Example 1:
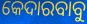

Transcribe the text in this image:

କେଦାରବାବୁ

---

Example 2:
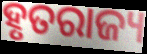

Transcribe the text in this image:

ହୃତରାଜ୍ୟ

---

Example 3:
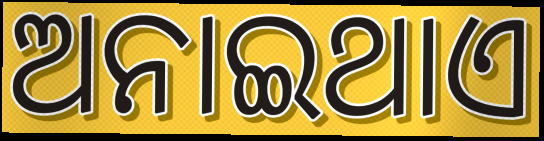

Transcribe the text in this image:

ଅନାଇଥାଏ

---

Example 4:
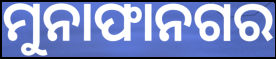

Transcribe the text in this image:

ମୁନାଫାନଗର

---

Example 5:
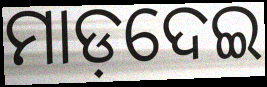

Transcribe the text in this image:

ମାଡ଼ଦେଇ